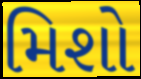
મિશો